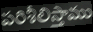
పరిశీలిస్తాము